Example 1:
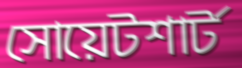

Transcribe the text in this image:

সোয়েটশার্ট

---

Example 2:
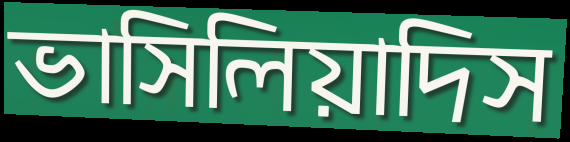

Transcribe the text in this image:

ভাসিলিয়াদিস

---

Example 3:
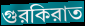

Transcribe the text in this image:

গুরকিরাত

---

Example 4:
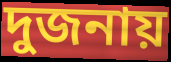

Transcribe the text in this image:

দুজনায়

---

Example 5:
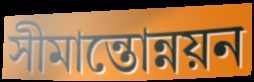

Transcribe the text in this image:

সীমান্তোন্নয়ন